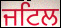
ਜਟਿਲ